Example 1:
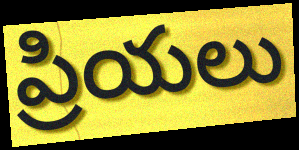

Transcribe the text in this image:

ప్రియలు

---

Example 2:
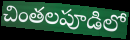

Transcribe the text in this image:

చింతలపూడిలో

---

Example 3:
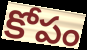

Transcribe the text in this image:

కోపం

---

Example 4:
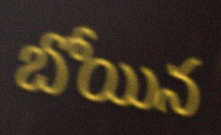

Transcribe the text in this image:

బోయిన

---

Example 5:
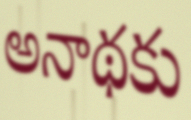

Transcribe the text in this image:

అనాథకు